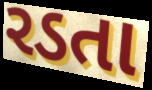
રડતા